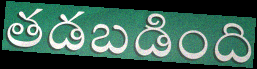
తడబడింది